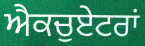
ਐਕਚੁਏਟਰਾਂ